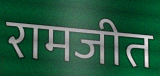
रामजीत